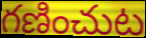
గణించుట